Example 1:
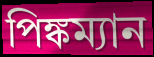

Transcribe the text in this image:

পিঙ্কম্যান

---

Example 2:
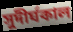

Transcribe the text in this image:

সুদীর্ঘকাল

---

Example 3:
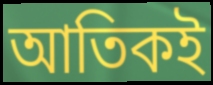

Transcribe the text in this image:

আতিকই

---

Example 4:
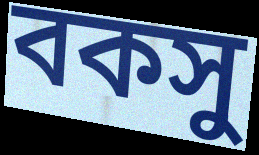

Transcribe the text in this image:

বকসু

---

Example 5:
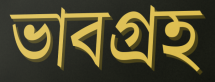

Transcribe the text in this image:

ভাবগ্রহ